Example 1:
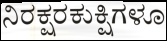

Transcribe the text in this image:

ನಿರಕ್ಷರಕುಕ್ಷಿಗಳೂ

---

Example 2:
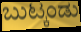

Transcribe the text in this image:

ಬುಟ್ಕಂಡು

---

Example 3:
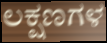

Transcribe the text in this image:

ಲಕ್ಷಣಗಳ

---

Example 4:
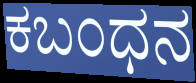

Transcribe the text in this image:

ಕಬಂಧನ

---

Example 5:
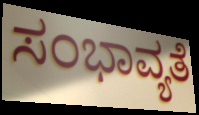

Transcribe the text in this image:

ಸಂಭಾವ್ಯತೆ